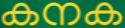
കനക